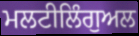
ਮਲਟੀਲਿੰਗੁਅਲ